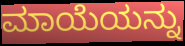
ಮಾಯೆಯನ್ನು